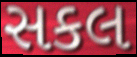
સકલ